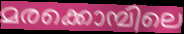
മരക്കൊമ്പിലെ